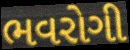
ભવરોગી